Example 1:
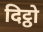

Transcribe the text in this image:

दिट्ठो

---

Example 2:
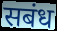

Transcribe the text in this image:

सबंध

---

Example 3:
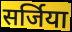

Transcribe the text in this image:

सर्जिया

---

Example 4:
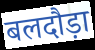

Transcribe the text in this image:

बलदौड़ा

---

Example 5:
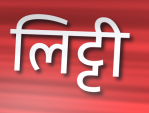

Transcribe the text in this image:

लिट्टी